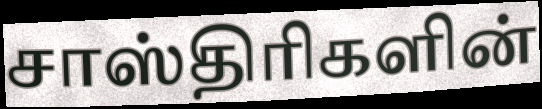
சாஸ்திரிகளின்